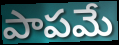
పాపమే